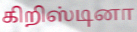
கிறிஸ்டினா